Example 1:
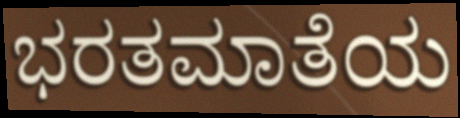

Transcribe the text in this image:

ಭರತಮಾತೆಯ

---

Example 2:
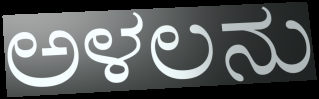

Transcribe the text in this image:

ಅಳಲನು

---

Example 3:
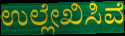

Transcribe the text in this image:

ಉಲ್ಲೇಖಿಸಿವೆ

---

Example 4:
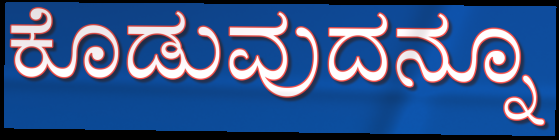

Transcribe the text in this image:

ಕೊಡುವುದನ್ನೂ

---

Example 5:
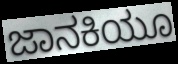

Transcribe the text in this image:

ಜಾನಕಿಯೂ